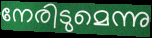
നേരിടുമെന്നു